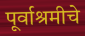
पूर्वाश्रमीचे